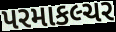
પરમાકલ્ચર